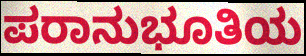
ಪರಾನುಭೂತಿಯ